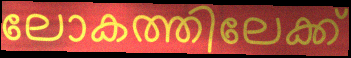
ലോകത്തിലേക്ക്